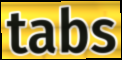
tabs